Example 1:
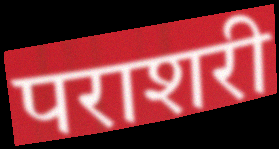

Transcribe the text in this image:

पराशरी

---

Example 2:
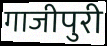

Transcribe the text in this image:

गाजीपुरी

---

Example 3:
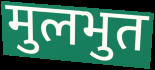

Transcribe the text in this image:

मुलभुत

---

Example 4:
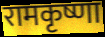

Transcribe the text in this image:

रामकृष्णा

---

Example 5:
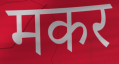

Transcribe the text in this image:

मकर